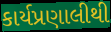
કાર્યપ્રણાલીથી